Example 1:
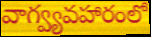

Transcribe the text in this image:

వాగ్వ్యవహారంలో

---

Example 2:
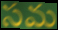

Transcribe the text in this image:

సమ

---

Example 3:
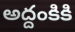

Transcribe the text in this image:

అద్దంకికి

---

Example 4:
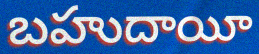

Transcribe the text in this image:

బహుదాయీ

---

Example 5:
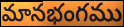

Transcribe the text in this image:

మానభంగము